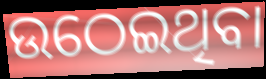
ଉଠେଇଥିବା